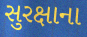
સુરક્ષાના